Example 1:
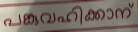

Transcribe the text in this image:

പങ്കുവഹിക്കാന്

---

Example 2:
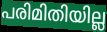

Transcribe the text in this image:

പരിമിതിയില്ല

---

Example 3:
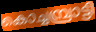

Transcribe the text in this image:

കൊച്ചമ്പ്രാട്ടി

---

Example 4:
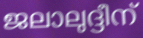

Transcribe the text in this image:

ജലാലുദ്ദീന്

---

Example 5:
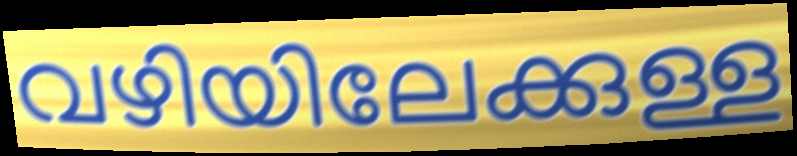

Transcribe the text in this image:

വഴിയിലേക്കുള്ള